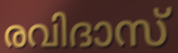
രവിദാസ്